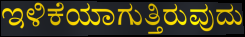
ಇಳಿಕೆಯಾಗುತ್ತಿರುವುದು